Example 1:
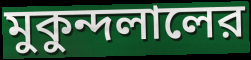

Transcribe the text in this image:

মুকুন্দলালের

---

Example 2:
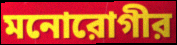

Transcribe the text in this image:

মনোরোগীর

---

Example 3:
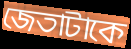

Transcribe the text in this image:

জেতাটাকে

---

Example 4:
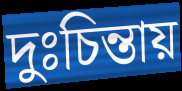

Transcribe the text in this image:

দুঃচিন্তায়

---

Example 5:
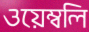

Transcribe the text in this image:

ওয়েম্বলি